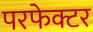
परफेक्टर